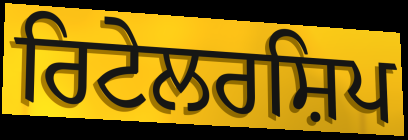
ਰਿਟੇਲਰਸ਼ਿਪ